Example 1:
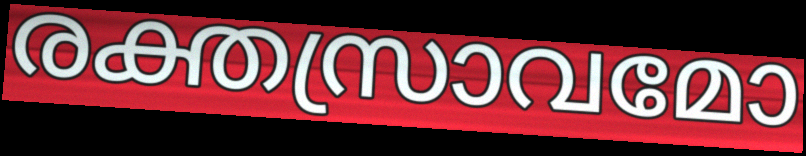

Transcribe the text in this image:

രക്തസ്രാവമോ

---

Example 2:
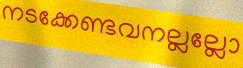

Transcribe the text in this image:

നടക്കേണ്ടവനല്ലല്ലോ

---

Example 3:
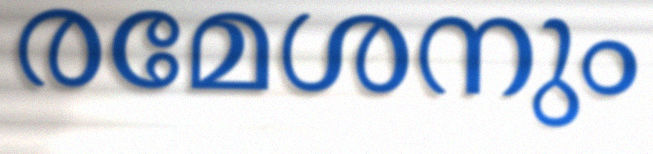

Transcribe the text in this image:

രമേശനും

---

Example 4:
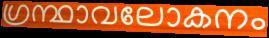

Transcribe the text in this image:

ഗ്രന്ഥാവലോകനം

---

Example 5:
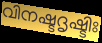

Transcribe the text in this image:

വിനഷ്ടദൃഷ്ടിഃ